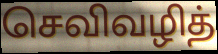
செவிவழித்